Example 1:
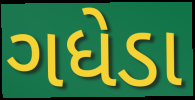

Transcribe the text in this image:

ગધેડા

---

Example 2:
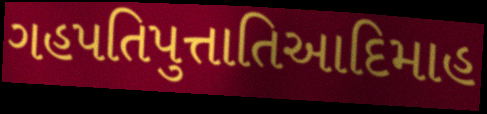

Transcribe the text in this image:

ગહપતિપુત્તાતિઆદિમાહ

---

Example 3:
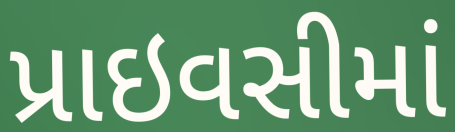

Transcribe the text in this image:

પ્રાઇવસીમાં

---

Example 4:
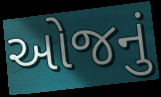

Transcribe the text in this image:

ઓજનું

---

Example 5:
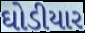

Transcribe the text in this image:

ઘોડીયાર